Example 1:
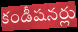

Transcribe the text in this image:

కండీషనర్లు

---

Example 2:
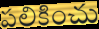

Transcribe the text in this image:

పలికించు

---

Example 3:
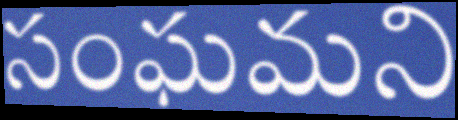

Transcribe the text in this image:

సంఘమని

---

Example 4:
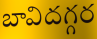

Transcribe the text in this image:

బావిదగ్గర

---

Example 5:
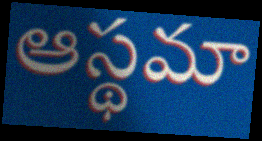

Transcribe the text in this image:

ఆస్థమా